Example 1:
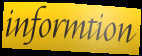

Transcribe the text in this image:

informtion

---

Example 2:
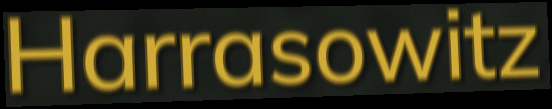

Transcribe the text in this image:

Harrasowitz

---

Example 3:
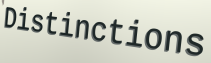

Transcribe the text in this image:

Distinctions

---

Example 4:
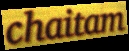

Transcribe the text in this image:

chaitam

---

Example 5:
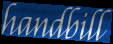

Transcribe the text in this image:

handbill